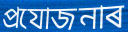
প্ৰযোজনাৰ